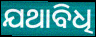
ଯଥାବିଧି